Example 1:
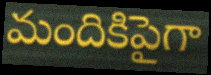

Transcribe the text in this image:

మందికిపైగా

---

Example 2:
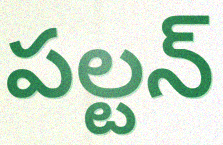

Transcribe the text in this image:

పల్టన్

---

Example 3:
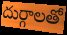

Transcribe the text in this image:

దుర్గాలతో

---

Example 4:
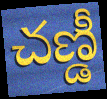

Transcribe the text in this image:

చణ్డీ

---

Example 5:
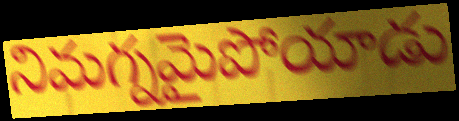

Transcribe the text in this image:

నిమగ్నమైపోయాడు